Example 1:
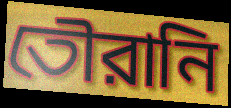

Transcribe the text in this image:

তৌরানি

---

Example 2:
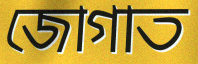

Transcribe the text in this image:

জোগাত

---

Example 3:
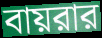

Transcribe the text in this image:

বায়রার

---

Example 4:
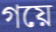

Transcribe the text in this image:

গয়ে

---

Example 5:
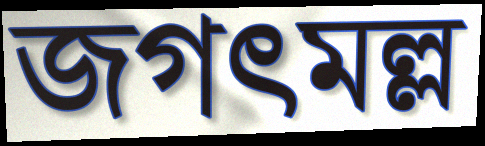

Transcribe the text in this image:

জগৎমল্ল